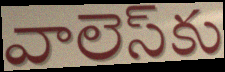
వాలెస్‌కు